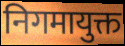
निगमायुक्त